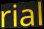
rial